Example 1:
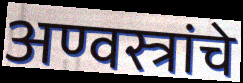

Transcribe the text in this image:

अण्वस्त्रांचे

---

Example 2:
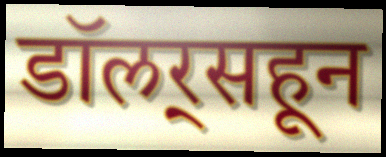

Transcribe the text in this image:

डॉलर्सहून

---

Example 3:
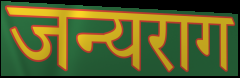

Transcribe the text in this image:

जन्यराग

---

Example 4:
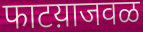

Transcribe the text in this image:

फाटय़ाजवळ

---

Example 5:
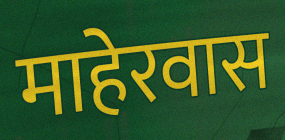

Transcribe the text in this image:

माहेरवास